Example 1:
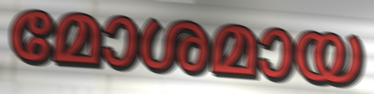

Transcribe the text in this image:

മോശമായ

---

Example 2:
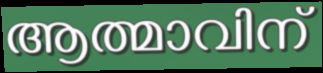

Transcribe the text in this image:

ആത്മാവിന്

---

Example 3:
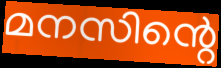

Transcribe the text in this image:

മനസിന്റെ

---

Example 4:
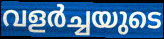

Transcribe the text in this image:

വളർച്ചയുടെ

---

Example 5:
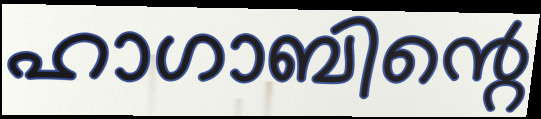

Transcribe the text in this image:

ഹാഗാബിന്റെ